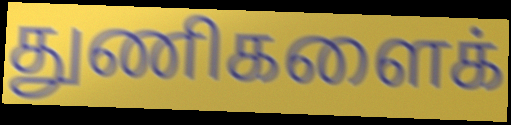
துணிகளைக்